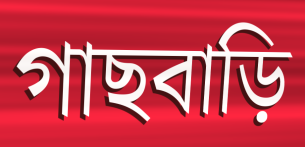
গাছবাড়ি